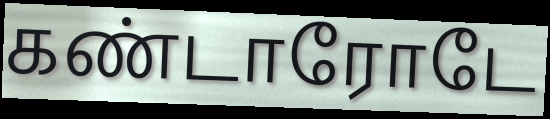
கண்டாரோடே